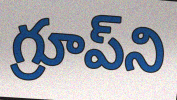
గ్రూప్‌ని